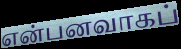
என்பனவாகப்